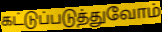
கட்டுப்படுத்துவோம்